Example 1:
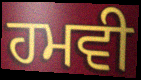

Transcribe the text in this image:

ਹਮਵੀ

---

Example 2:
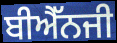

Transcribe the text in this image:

ਬੀਐੱਨਜੀ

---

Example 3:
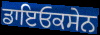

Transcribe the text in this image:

ਡਾਇਓਕਸੇਨ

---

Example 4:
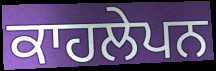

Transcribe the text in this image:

ਕਾਹਲੇਪਨ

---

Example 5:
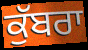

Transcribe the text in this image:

ਕੁੱਬਰਾ